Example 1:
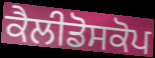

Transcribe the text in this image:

ਕੈਲੀਡੋਸਕੋਪ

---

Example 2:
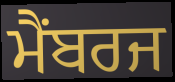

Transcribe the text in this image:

ਮੈਂਬਰਜ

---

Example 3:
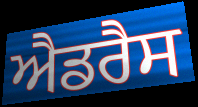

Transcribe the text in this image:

ਐਡਰੈਸ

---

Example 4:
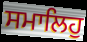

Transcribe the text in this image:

ਸਮਾਲਿਹੁ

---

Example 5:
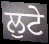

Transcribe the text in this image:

ਲੁਟੇ